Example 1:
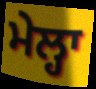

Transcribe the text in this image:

ਮੇਲ੍ਹਾ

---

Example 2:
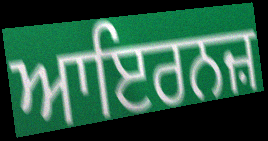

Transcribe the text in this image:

ਆਇਰਨਜ਼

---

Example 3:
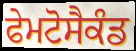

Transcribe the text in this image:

ਫੇਮਟੋਸੈਕੰਡ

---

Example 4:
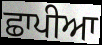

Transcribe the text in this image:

ਛਾਪੀਆ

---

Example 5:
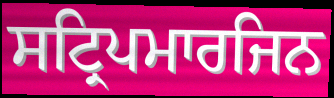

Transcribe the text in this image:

ਸਟ੍ਰਿਪਮਾਰਜਿਨ